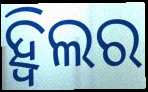
ହ୍ୱିଲର